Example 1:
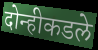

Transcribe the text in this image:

दोन्हीकडले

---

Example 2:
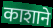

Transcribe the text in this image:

काशाने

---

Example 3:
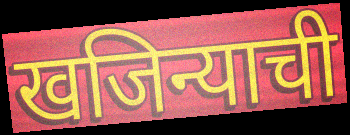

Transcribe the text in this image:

खजिन्याची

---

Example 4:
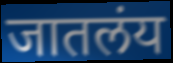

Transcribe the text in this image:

जातलंय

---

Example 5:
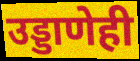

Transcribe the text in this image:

उड्डाणेही